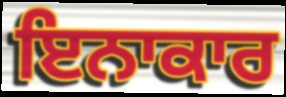
ਇਨਾਕਾਰ